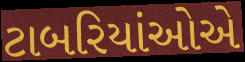
ટાબરિયાંઓએ